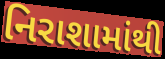
નિરાશામાંથી